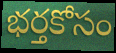
భర్తకోసం